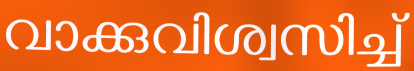
വാക്കുവിശ്വസിച്ച്